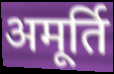
अमूर्ति